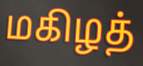
மகிழத்